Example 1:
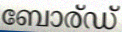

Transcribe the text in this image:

ബോര്ഡ്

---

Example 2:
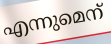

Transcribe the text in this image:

എന്നുമെന്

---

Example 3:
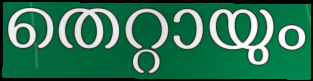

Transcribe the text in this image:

തെറ്റായും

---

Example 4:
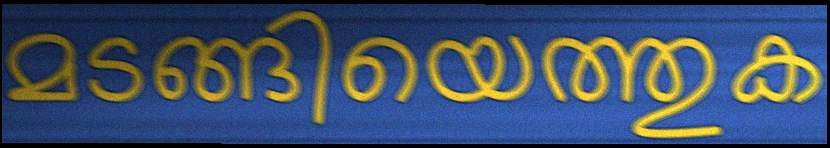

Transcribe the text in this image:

മടങ്ങിയെത്തുക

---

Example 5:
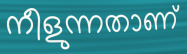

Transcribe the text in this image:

നീളുന്നതാണ്